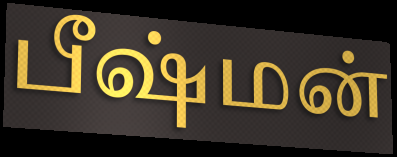
பீஷ்மன்